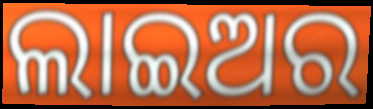
ଲାଇଅର